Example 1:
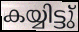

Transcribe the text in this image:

കയ്യിട്ടു്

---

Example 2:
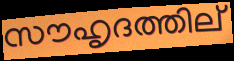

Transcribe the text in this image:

സൗഹൃദത്തില്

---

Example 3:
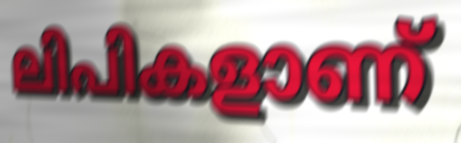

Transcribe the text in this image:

ലിപികളാണ്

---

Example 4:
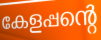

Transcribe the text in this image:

കേളപ്പന്റെ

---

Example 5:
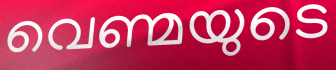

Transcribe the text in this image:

വെണ്മയുടെ